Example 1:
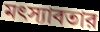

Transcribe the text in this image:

মৎস্যাবতার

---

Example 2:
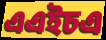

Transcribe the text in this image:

এএইচএ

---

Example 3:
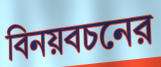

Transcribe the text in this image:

বিনয়বচনের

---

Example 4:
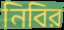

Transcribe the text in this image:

নিবির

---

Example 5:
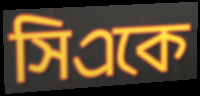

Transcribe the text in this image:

সিএকে